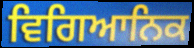
ਵਿਗਿਆਨਿਕ